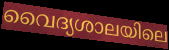
വൈദ്യശാലയിലെ